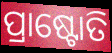
ପ୍ରାଷ୍ଟୋତି